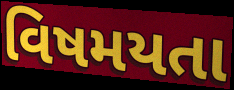
વિષમયતા